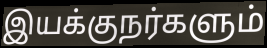
இயக்குநர்களும்